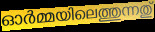
ഓർമ്മയിലെത്തുന്നതു്